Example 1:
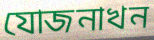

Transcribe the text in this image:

যোজনাখন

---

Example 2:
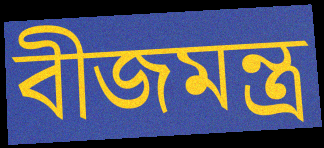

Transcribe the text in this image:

বীজমন্ত্ৰ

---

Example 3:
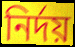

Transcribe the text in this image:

নিৰ্দয়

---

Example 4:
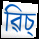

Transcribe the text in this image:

ৱিচ্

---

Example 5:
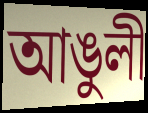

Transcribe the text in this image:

আঙুলী